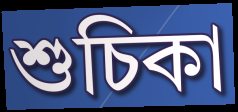
শুচিকা